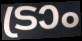
ട്രാം